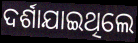
ଦର୍ଶାଯାଇଥିଲେ